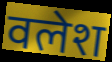
वलेश